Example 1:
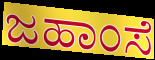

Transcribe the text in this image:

ಜಹಾಂಸೆ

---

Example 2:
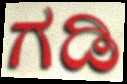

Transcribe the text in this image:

ಗಡಿ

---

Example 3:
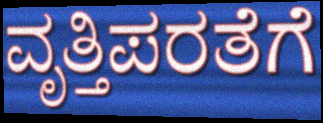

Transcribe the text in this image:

ವೃತ್ತಿಪರತೆಗೆ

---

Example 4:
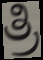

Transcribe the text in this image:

ತ್ರಿ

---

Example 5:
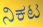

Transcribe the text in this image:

ನಿಕಟ